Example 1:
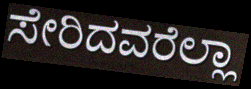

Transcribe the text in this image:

ಸೇರಿದವರೆಲ್ಲಾ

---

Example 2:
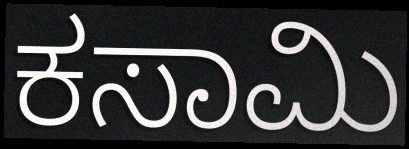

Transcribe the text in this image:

ಕಸಾಮಿ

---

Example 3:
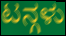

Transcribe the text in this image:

ಟನ್ಗಳು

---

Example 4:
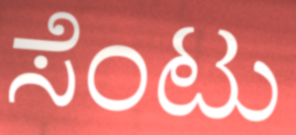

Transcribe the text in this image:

ಸೆಂಟು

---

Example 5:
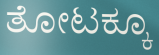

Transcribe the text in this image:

ತೋಟಕ್ಕೂ